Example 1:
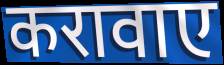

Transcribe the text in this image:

करावाए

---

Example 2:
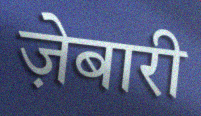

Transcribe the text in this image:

ज़ेबारी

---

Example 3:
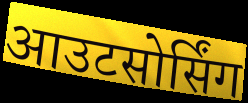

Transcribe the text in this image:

आउटसोर्सिंग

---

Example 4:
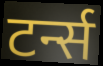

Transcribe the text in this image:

टर्न्स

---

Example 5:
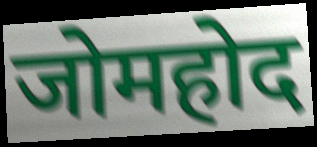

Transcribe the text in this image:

जोमहोद